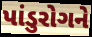
પાંડુરોગને